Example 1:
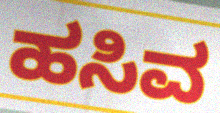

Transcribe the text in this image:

ಹಸಿವ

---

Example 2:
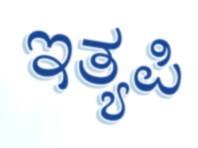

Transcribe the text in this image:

ಇತ್ಯಪಿ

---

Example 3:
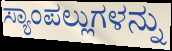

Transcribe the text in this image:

ಸ್ಯಾಂಪಲ್ಲುಗಳನ್ನು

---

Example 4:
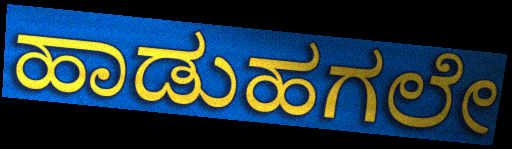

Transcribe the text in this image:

ಹಾಡುಹಗಲೇ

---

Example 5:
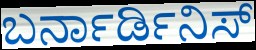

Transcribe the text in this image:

ಬರ್ನಾರ್ಡಿನಿಸ್